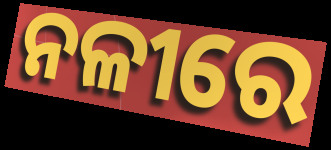
ନଳୀରେ